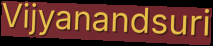
Vijyanandsuri